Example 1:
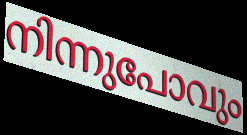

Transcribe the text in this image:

നിന്നുപോവും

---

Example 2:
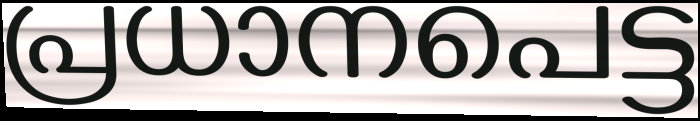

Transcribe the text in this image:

പ്രധാനപെട്ട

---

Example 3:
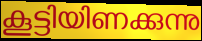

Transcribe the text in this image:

കൂട്ടിയിണക്കുന്നു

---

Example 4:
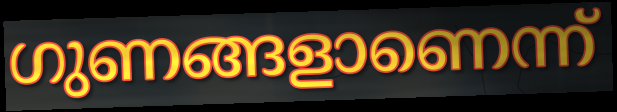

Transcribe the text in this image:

ഗുണങ്ങളാണെന്ന്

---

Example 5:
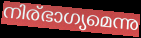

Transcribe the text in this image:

നിര്ഭാഗ്യമെന്നു